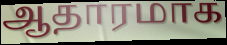
ஆதாரமாக